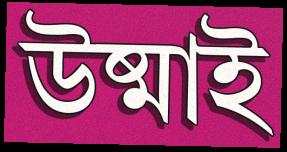
উষ্মাই